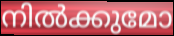
നിൽക്കുമോ